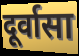
दूर्वासा